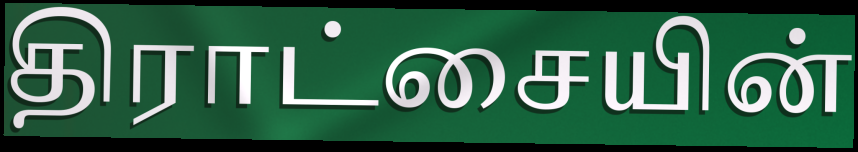
திராட்சையின்